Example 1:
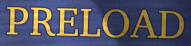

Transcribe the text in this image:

PRELOAD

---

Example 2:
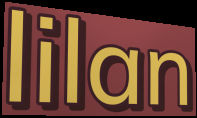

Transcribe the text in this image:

lilan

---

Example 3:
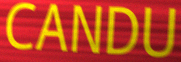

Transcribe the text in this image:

CANDU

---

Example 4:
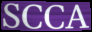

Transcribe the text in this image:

SCCA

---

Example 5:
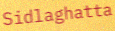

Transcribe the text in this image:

Sidlaghatta